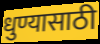
धुण्यासाठी